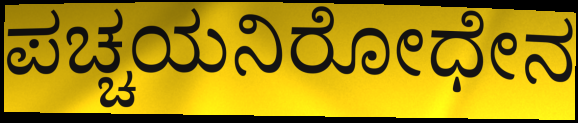
ಪಚ್ಚಯನಿರೋಧೇನ